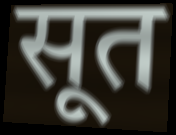
सूत